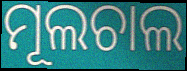
ମୂଲଚାଲ